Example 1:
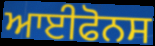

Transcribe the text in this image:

ਆਈਫੋਨਸ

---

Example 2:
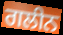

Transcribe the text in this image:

ਗਲੀਨ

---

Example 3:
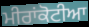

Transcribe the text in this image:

ਮੀਰਾਂਕੋਟੀਆ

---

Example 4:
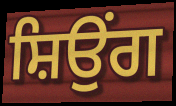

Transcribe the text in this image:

ਸ਼ਿਉਂਗ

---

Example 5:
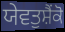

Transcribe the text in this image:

ਯੇਵਤੁਸ਼ੈਂਕੋ